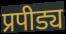
प्रपीड्य